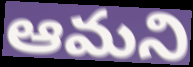
ఆమని